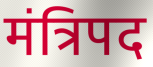
मंत्रिपद